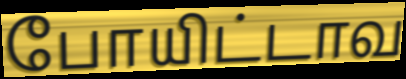
போயிட்டாவ